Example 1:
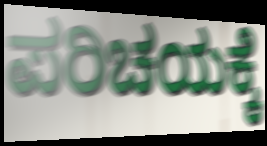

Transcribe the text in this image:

ಪರಿಚಯಕ್ಕೆ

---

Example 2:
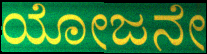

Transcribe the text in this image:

ಯೋಜನೇ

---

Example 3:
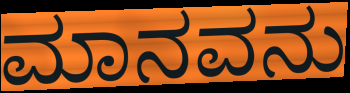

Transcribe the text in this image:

ಮಾನವನು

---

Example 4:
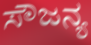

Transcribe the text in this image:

ಸೌಜನ್ಯ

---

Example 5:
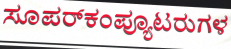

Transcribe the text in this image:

ಸೂಪರ್‌ಕಂಪ್ಯೂಟರುಗಳ